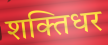
शक्तिधर